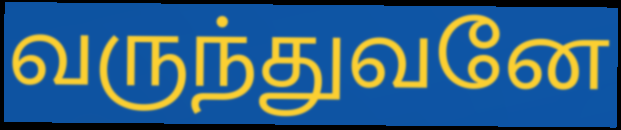
வருந்துவனே